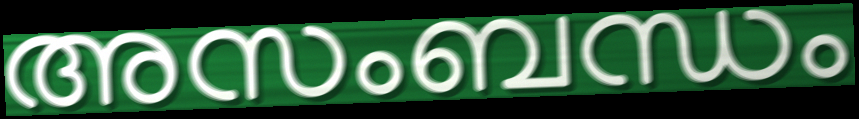
അസംബന്ധം